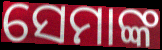
ସେମାଙ୍କ